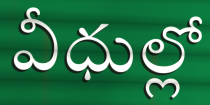
వీధుల్లో